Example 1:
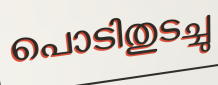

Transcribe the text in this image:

പൊടിതുടച്ചു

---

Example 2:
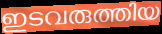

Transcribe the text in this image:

ഇടവരുത്തിയ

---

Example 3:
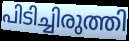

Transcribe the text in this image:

പിടിച്ചിരുത്തി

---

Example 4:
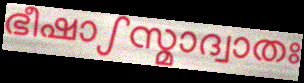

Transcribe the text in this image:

ഭീഷാഽസ്മാദ്വാതഃ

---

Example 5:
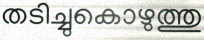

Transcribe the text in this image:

തടിച്ചുകൊഴുത്തു